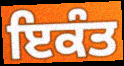
ਇਕੰਤ